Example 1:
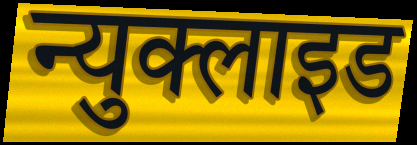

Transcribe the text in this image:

न्युक्लाइड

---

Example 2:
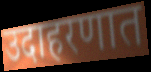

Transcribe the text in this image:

उदाहरणात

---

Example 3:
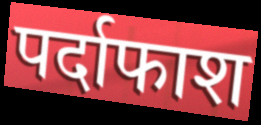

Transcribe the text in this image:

पर्दाफाश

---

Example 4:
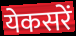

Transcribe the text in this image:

येकसरें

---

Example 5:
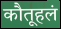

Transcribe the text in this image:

कौतूहलं